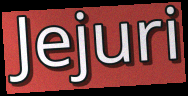
Jejuri